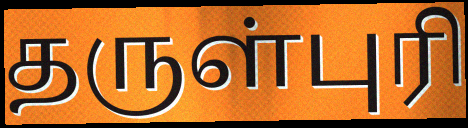
தருள்புரி